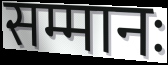
सम्मानः